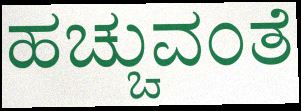
ಹಚ್ಚುವಂತೆ